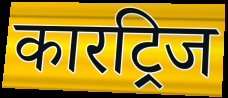
कारट्रिज